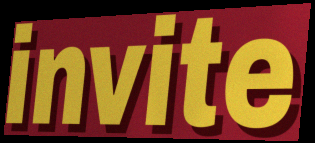
invite